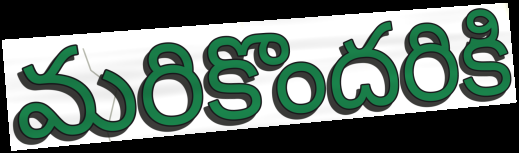
మరికొందరికి